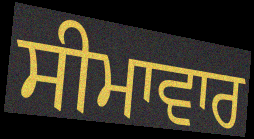
ਸੀਮਾਵਾਰ